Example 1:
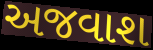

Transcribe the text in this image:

અજવાશ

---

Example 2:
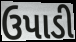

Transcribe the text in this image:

ઉપાડી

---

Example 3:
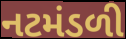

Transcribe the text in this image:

નટમંડળી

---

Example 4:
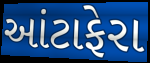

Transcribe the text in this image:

આંટાફેરા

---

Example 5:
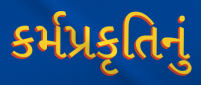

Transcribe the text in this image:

કર્મપ્રકૃતિનું